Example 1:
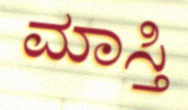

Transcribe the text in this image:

ಮಾಸ್ತಿ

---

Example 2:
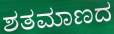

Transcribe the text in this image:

ಶತಮಾಣದ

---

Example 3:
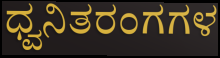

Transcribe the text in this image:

ಧ್ವನಿತರಂಗಗಳ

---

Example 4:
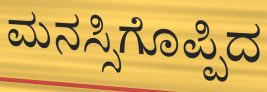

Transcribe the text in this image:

ಮನಸ್ಸಿಗೊಪ್ಪಿದ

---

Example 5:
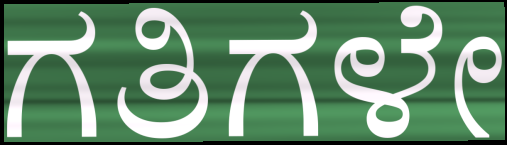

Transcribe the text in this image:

ಗತಿಗಳೇ